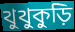
থুথুকুড়ি